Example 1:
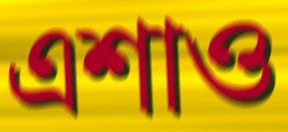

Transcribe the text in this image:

এশাও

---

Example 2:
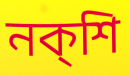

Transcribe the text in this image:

নক্‌শি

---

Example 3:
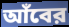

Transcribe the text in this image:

আঁবের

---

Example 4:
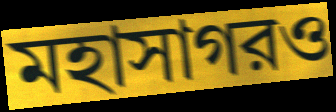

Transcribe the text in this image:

মহাসাগরও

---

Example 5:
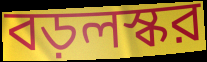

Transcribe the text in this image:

বড়লস্কর